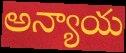
అన్యాయ